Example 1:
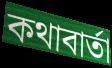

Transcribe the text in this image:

কথাবাৰ্তা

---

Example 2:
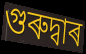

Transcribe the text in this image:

গুৰুদ্বাৰ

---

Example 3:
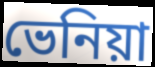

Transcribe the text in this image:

ভেনিয়া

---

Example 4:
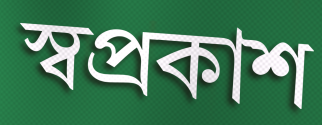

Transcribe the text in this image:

স্বপ্ৰকাশ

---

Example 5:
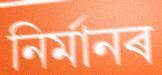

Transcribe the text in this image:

নিৰ্মানৰ